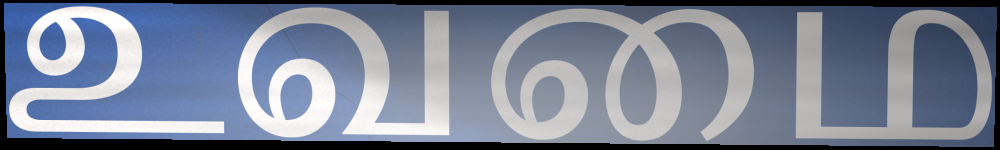
உவமை